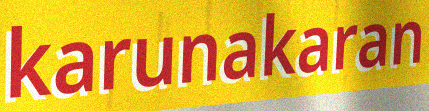
karunakaran